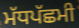
ਮੱਧਪੱਛਮੀ